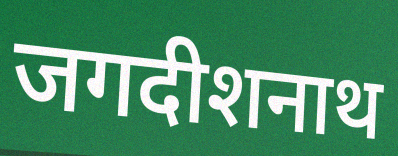
जगदीशनाथ